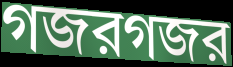
গজরগজর